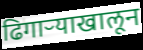
ढिगाऱ्याखालून